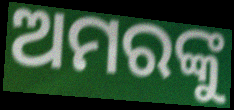
ଅମରଙ୍କୁ